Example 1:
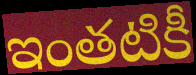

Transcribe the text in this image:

ఇంతటికీ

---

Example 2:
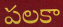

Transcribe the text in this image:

పలకా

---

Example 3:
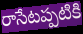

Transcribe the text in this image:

రాసేటప్పటికి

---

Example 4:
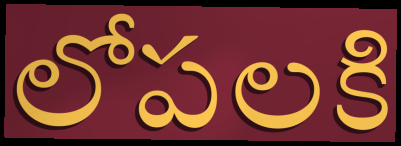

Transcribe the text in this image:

లోపలకి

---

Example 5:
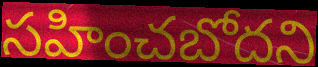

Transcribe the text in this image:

సహించబోదని